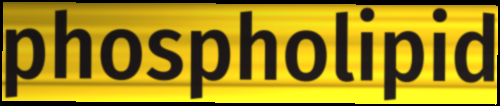
phospholipid